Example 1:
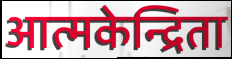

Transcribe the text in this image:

आत्मकेन्द्रिता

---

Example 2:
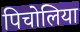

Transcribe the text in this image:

पिचोलिया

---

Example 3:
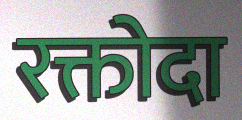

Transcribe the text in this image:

रक्तोदा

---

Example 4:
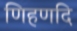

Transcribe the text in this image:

णिहणदि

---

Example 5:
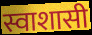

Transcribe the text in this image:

स्वाशासी